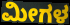
ಮೀಗಳ